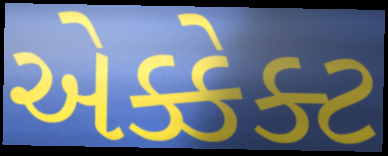
એક્કેક્ટ